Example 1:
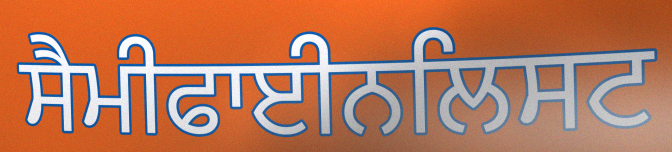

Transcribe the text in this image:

ਸੈਮੀਫਾਈਨਲਿਸਟ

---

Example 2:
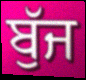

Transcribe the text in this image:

ਬੁੱਜ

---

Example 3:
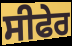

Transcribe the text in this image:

ਸੀਫੇਰ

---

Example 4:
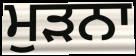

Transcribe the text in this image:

ਮੁੜਨਾ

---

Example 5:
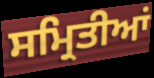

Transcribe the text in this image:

ਸਮ੍ਰਿਤੀਆਂ